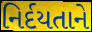
નિર્દયતાને